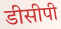
डीसीपी